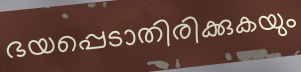
ഭയപ്പെടാതിരിക്കുകയും